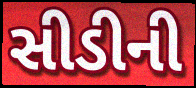
સીડીની